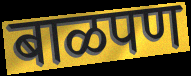
बाळपण